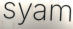
syam